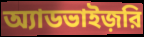
অ্যাডভাইজ়রি